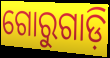
ଗୋରୁଗାଡ଼ି